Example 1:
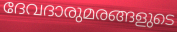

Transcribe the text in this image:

ദേവദാരുമരങ്ങളുടെ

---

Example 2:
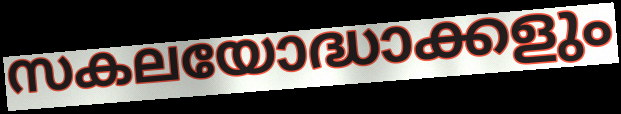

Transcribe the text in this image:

സകലയോദ്ധാക്കളും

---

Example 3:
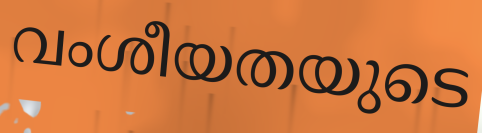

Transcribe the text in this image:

വംശീയതയുടെ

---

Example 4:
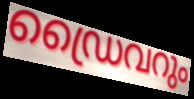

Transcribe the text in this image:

ഡ്രൈവറും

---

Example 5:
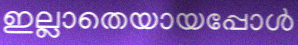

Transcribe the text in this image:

ഇല്ലാതെയായപ്പോൾ